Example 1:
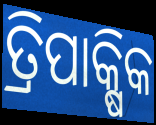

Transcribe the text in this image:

ତ୍ରିପାକ୍ଷିକ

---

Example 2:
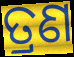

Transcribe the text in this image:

ତ୍ରଣ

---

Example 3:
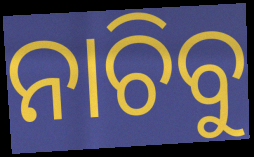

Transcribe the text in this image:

ନାଚିବୁ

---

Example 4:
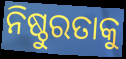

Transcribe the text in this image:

ନିଷ୍ଠୁରତାକୁ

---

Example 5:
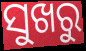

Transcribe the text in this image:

ସୁଖରୁ